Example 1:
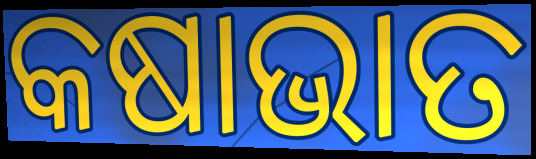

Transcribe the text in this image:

କଷାଭାତ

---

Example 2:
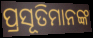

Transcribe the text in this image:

ପ୍ରସୂତିମାନଙ୍କ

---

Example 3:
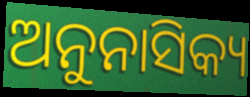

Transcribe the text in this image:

ଅନୁନାସିକ୍ୟ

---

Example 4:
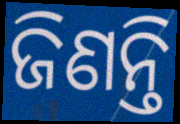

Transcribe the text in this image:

ଜିଣନ୍ତି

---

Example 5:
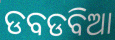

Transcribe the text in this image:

ଡବଡବିଆ